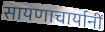
सायणाचार्यानीं